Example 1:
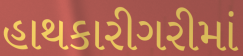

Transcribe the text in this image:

હાથકારીગરીમાં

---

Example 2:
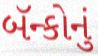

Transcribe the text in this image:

બૅન્કોનું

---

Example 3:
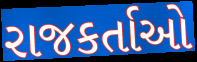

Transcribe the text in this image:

રાજકર્તાઓ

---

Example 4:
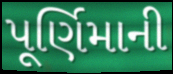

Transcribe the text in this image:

પૂર્ણિમાની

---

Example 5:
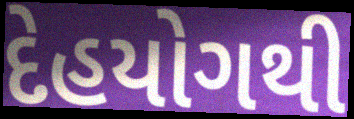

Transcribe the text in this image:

દેહયોગથી